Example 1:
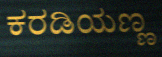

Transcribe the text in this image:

ಕರಡಿಯಣ್ಣ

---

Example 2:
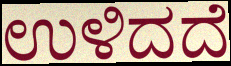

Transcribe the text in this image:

ಉಳಿದದೆ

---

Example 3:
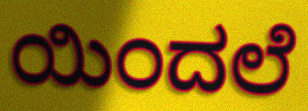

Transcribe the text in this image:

ಯಿಂದಲೆ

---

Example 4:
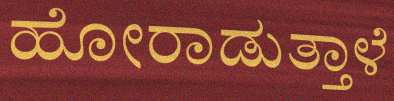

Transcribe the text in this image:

ಹೋರಾಡುತ್ತಾಳೆ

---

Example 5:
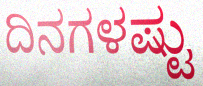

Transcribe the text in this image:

ದಿನಗಳಷ್ಟು